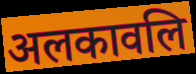
अलकावलि